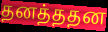
தனத்ததன